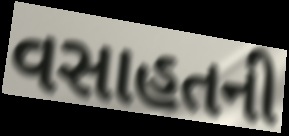
વસાહતની